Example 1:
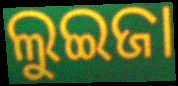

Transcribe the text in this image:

ଲୁଇଜା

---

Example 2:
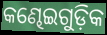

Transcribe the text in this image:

କଣ୍ଢେଇଗୁଡ଼ିକ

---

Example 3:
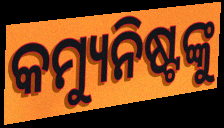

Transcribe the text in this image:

କମ୍ୟୁନିଷ୍ଟଙ୍କୁ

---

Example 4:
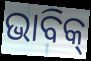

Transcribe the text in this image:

ଭାବିକ୍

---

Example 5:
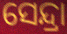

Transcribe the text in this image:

ସେନ୍ଦ୍ରା